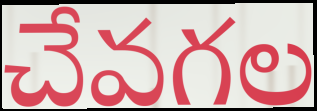
చేవగల